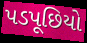
પડપૂછિયો